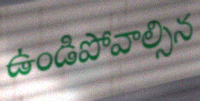
ఉండిపోవాల్సిన